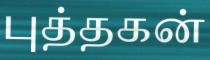
புத்தகன்